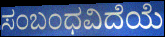
ಸಂಬಂಧವಿದೆಯೆ